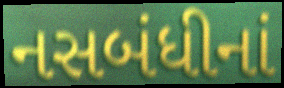
નસબંધીનાં